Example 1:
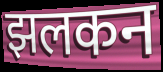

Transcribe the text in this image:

झलकन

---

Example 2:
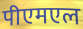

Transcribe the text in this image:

पीएमएल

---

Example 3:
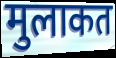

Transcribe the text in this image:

मुलाकत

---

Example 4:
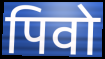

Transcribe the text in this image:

पिवो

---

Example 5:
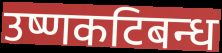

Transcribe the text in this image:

उष्णकटिबन्ध